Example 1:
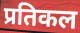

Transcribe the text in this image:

प्रतिकल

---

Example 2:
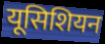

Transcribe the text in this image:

यूसिशियन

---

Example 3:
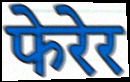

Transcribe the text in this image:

फेरेर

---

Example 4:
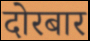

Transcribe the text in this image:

दोरबार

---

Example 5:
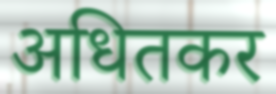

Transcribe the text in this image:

अधितकर